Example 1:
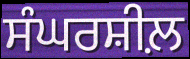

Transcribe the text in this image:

ਸੰਘਰਸ਼ੀਲ਼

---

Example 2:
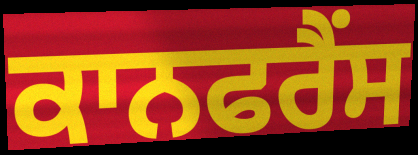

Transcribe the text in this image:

ਕਾਨਫਰੈਂਸ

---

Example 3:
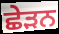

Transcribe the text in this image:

ਛੇੜਨ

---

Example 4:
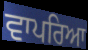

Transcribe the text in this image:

ਵਾਪਰਿਆ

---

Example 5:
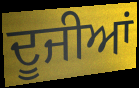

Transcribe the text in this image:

ਦੂਜੀਆਂ